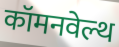
कॉमनवेल्थ